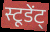
स्टूडेंट्